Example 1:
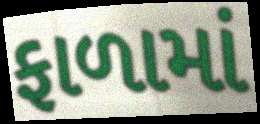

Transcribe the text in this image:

ફાળામાં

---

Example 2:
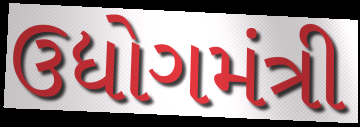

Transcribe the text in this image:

ઉદ્યોગમંત્રી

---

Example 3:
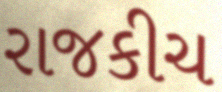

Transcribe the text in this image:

રાજકીચ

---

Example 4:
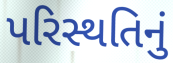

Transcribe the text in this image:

પરિસ્થતિનું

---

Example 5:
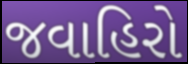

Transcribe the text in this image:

જવાહિરો